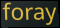
foray